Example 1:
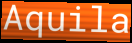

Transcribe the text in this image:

Aquila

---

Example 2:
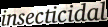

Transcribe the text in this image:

insecticidal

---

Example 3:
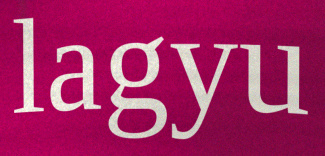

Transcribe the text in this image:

lagyu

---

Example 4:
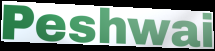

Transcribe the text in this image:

Peshwai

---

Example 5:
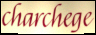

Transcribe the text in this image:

charchege